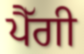
ਪੈੱਗੀ